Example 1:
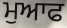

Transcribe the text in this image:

ਮੁਆਫ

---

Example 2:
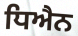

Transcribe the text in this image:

ਧਿਐਨ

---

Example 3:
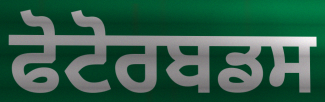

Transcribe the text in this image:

ਫੋਟੋਰਬਡਸ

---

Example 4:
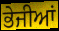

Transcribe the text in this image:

ਭੇਜੀਆਂ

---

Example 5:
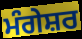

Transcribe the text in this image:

ਮੰਗੇਸ਼ਰ